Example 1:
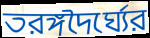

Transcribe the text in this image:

তরঙ্গদৈর্ঘ্যের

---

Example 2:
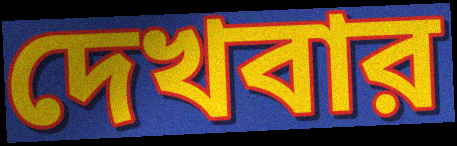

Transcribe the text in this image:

দেখবার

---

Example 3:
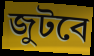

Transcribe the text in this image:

জুটবে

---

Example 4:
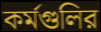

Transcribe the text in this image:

কর্মগুলির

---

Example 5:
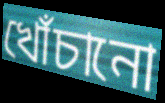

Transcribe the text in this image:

খোঁচানো